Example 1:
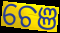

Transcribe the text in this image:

ଚେଞ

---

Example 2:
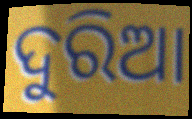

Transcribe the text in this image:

ଦୁରିଆ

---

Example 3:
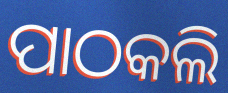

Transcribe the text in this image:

ପାଠକଲି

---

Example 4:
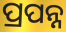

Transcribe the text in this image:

ପ୍ରପନ୍ନ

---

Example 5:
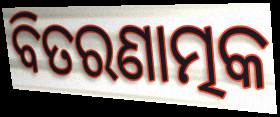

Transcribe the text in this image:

ବିତରଣାତ୍ମକ